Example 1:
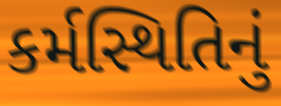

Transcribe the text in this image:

કર્મસ્થિતિનું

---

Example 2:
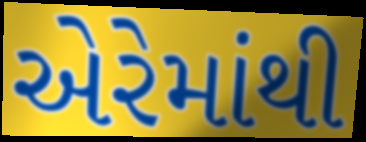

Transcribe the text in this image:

એરેમાંથી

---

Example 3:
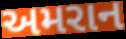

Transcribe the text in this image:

અમરાન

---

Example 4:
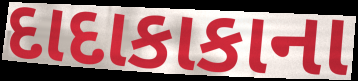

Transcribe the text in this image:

દાદાકાકાના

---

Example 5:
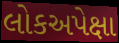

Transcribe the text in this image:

લોકઅપેક્ષા